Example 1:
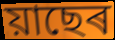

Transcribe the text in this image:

য়াছেৰ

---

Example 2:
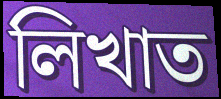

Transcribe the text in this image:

লিখাত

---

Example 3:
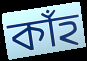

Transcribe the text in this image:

কাঁহ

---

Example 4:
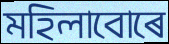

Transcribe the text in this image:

মহিলাবোৰে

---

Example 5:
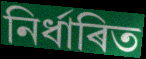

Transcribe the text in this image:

নিৰ্ধাৰিত